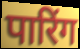
पारिंग